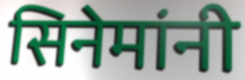
सिनेमांनी